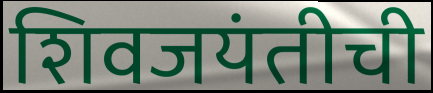
शिवजयंतीची